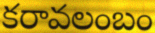
కరావలంబం